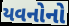
યવનોનો